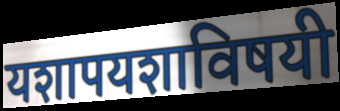
यशापयशाविषयी